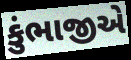
કુંભાજીએ